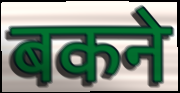
बकने